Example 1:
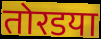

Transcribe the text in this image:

तोरडया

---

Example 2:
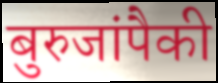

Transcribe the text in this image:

बुरुजांपैकी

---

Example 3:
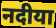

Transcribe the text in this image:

नदीया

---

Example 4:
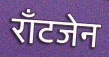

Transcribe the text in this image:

राँटजेन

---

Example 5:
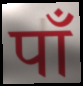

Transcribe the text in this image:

पाँ